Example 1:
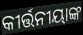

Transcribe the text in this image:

କୀର୍ତ୍ତନୀୟାଙ୍କ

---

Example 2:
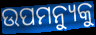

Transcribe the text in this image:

ଉପମନ୍ୟୁକୁ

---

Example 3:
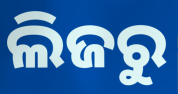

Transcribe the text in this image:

ଲିଜରୁ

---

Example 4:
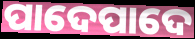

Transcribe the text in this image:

ପାଦେପାଦେ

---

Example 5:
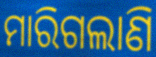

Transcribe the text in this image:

ମାରିଗଲାଣି